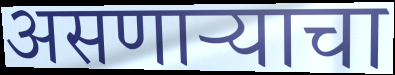
असणाऱ्याचा